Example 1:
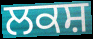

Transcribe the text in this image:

ਲਕਸ਼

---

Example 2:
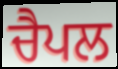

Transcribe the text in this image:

ਚੈਪਲ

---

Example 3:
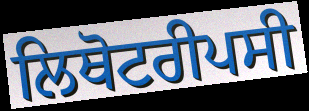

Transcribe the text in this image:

ਲਿਥੋਟਰੀਪਸੀ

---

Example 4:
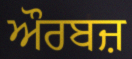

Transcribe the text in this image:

ਔਰਬਜ਼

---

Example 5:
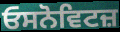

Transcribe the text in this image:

ਓਸਨੋਵਿਟਜ਼